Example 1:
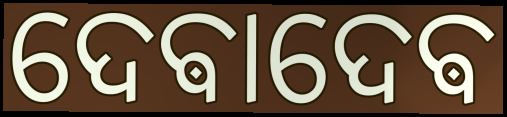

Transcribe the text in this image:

ଦେଵାଦେଵ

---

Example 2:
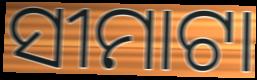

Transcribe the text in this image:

ସୀମାଟା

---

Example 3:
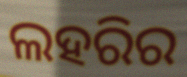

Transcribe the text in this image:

ଲହରିର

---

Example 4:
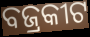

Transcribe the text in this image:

ବଜ୍ରକୀଟ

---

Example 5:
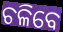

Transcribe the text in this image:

ଚଳିବେ